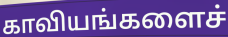
காவியங்களைச்